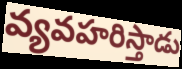
వ్యవహరిస్తాడు